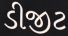
ડીજીટ